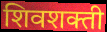
शिवशक्ती